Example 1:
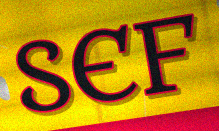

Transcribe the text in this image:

SEF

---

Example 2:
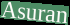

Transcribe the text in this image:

Asuran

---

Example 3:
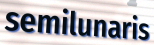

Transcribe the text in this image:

semilunaris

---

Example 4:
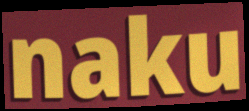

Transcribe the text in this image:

naku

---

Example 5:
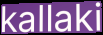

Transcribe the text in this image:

kallaki